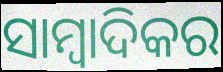
ସାମ୍ବାଦିକର